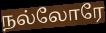
நல்லோரே